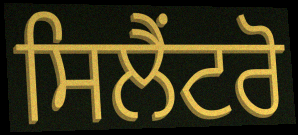
ਸਿਲੈਂਟਰੋ